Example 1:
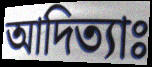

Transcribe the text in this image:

আদিত্যাঃ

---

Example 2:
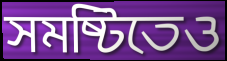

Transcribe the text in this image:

সমষ্টিতেও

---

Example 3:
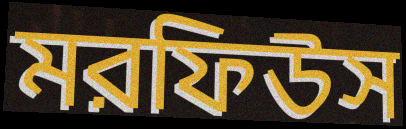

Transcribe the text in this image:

মরফিউস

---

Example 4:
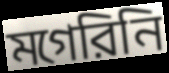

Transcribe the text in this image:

মগেরিনি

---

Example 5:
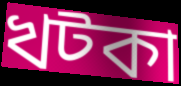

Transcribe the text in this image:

খট্কা